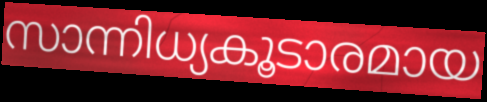
സാന്നിധ്യകൂടാരമായ